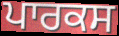
ਪਾਰਕਸ